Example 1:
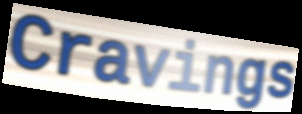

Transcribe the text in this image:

Cravings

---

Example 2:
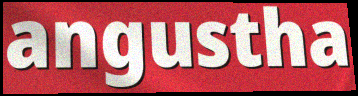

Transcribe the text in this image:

angustha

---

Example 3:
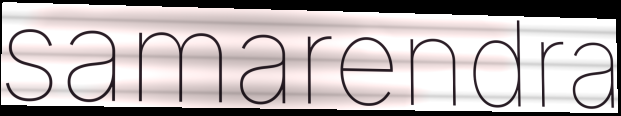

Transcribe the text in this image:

samarendra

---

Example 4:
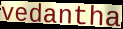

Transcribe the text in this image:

vedantha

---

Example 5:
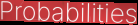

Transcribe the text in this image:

Probabilities